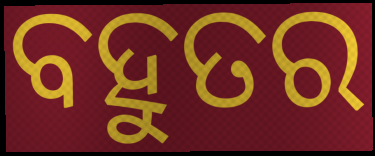
ବହୁତର